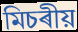
মিচৰীয়